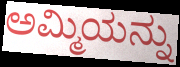
ಅಮ್ಮಿಯನ್ನು